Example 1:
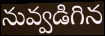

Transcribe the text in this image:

నువ్వడిగిన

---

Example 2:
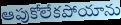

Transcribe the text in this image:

ఆపుకోలేకపోయాను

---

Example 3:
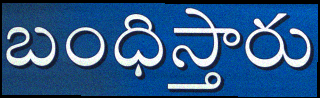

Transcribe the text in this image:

బంధిస్తారు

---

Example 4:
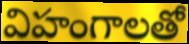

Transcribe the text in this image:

విహంగాలతో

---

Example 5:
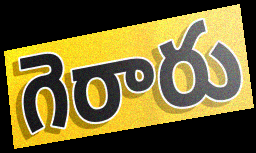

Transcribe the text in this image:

గెరారు